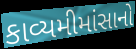
કાવ્યમીમાંસાનો